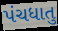
પંચધાતુ